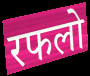
रफलो